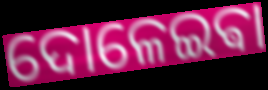
ଦୋଳେଇଵା